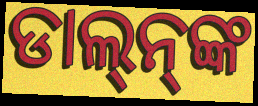
ଡାଲ୍‌ନ୍‌ଙ୍କ